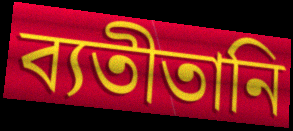
ব্যতীতানি